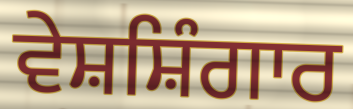
ਵੇਸ਼ਸ਼ਿੰਗਾਰ